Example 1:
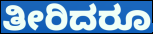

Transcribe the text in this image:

ತೀರಿದರೂ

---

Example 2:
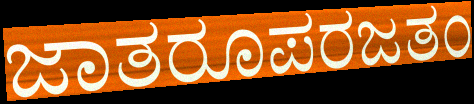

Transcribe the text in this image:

ಜಾತರೂಪರಜತಂ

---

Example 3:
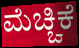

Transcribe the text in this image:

ಮೆಚ್ಚಿಕೆ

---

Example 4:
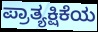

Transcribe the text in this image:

ಪ್ರಾತ್ಯಕ್ಷಿಕೆಯ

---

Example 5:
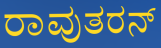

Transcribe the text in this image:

ರಾವುತರನ್